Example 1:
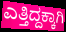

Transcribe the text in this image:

ಎತ್ತಿದ್ದಕ್ಕಾಗಿ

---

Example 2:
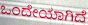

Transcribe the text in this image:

ಒಂದೇಯಾಗಿದೆ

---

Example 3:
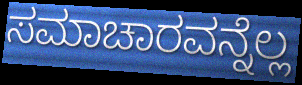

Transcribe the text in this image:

ಸಮಾಚಾರವನ್ನೆಲ್ಲ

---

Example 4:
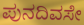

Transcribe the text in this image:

ಪುನದಿವಸೇ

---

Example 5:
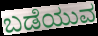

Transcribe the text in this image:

ಬಡೆಯುವ